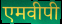
एमवीपी